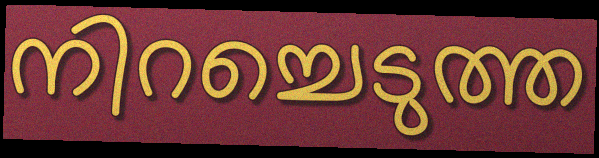
നിറച്ചെടുത്ത